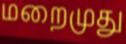
மறைமுது